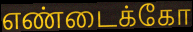
எண்டைக்கோ